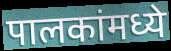
पालकांमध्ये